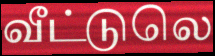
வீட்டுலெ